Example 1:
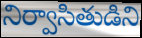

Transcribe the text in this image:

నిర్వాసితుడిని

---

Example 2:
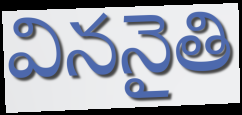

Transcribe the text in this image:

విననైతి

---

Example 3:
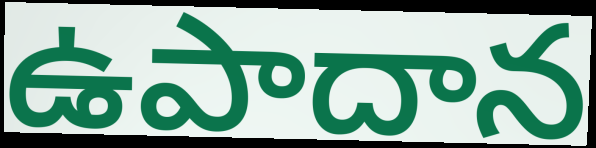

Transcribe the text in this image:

ఉపాదాన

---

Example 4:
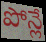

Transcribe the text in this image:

పోన్లే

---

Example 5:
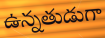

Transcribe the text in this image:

ఉన్నతుడుగా